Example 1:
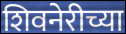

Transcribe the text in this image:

शिवनेरीच्या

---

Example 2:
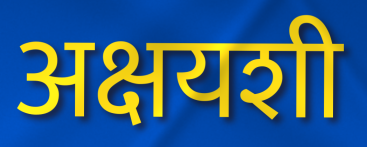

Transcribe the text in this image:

अक्षयशी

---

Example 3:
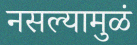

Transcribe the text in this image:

नसल्यामुळं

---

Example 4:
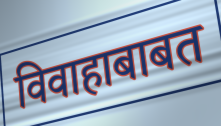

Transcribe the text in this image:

विवाहाबाबत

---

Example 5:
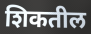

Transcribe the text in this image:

शिकतील